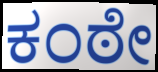
ಕಂಠೇ